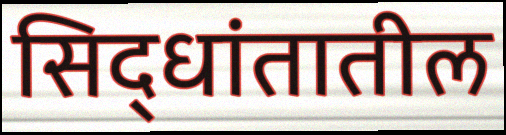
सिद्धांतातील